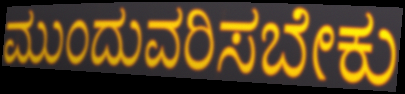
ಮುಂದುವರಿಸಬೇಕು